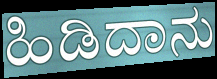
ಹಿಡಿದಾನು